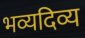
भव्यदिव्य